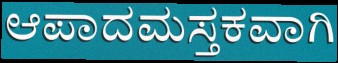
ಆಪಾದಮಸ್ತಕವಾಗಿ